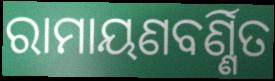
ରାମାୟଣବର୍ଣ୍ଣିତ